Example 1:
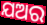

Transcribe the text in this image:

ଯଅର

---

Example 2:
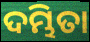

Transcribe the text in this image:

ଦମ୍ଭିତା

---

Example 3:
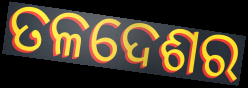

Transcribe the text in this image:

ତଳଦେଶର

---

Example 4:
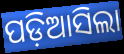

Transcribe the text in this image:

ପଡ଼ିଆସିଲା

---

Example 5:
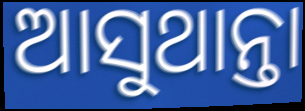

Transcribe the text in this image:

ଆସୁଥାନ୍ତା